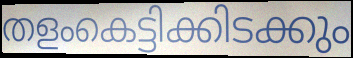
തളംകെട്ടിക്കിടക്കും